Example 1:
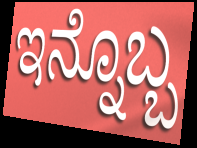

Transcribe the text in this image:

ಇನ್ನೊಬ್ಬ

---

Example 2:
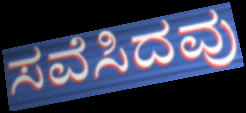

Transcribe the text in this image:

ಸವೆಸಿದವು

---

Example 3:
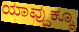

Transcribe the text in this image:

ಯಾವ್ದುಕ್ಕೂ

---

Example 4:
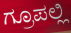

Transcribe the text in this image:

ಗ್ರೂಪಲ್ಲಿ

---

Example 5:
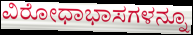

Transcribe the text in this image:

ವಿರೋಧಾಭಾಸಗಳನ್ನೂ